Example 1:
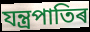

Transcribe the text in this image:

যন্ত্ৰপাতিৰ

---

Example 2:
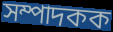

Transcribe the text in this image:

সম্পাদকক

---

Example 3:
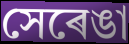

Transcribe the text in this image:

সেৰেঙা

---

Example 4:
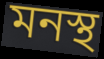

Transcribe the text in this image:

মনস্থ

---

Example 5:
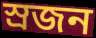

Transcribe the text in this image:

স্ৰজন